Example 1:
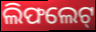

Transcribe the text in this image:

ଲିଫଲେଟ୍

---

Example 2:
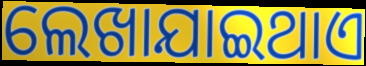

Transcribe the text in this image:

ଲେଖାଯାଇଥାଏ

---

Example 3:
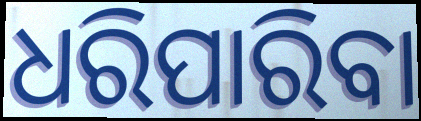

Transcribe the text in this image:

ଧରିପାରିବା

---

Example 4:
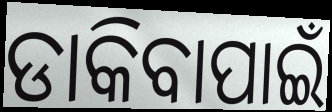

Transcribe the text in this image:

ଡାକିବାପାଇଁ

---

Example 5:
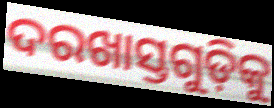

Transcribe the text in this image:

ଦରଖାସ୍ତଗୁଡ଼ିକୁ